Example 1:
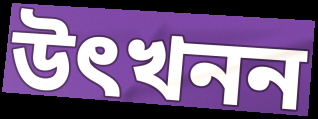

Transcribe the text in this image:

উৎখনন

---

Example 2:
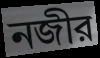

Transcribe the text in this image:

নজীর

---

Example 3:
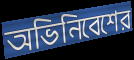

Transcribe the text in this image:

অভিনিবেশের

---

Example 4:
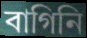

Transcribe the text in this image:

বাগিনি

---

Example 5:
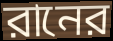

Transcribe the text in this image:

রানের